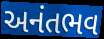
અનંતભવ